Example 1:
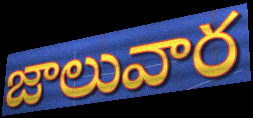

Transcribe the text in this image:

జాలువార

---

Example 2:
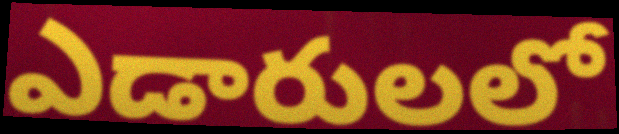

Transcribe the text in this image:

ఎడారులలో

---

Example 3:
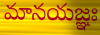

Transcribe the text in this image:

మానయజ్ఞః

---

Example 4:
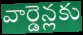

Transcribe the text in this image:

వార్డెన్లకు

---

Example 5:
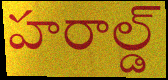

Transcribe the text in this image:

హరాల్డ్